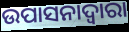
ଉପାସନାଦ୍ଵାରା